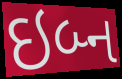
ઇબ્ન